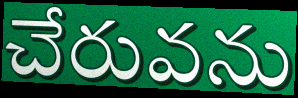
చేరువను